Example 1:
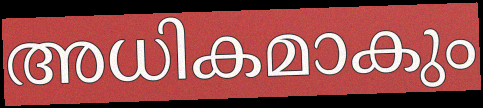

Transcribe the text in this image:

അധികമാകും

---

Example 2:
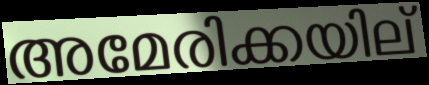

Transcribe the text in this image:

അമേരിക്കയില്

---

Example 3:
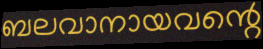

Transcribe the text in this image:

ബലവാനായവന്റെ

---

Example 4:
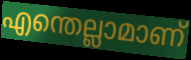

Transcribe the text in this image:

എന്തെല്ലാമാണ്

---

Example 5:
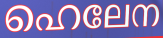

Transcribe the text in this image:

ഹെലേന